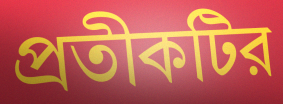
প্রতীকটির